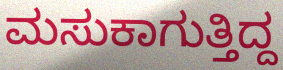
ಮಸುಕಾಗುತ್ತಿದ್ದ